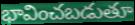
భావించబడుతూ